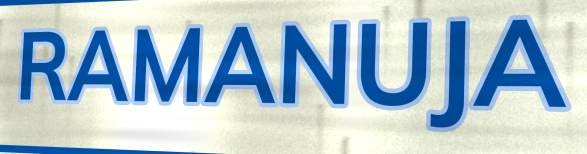
RAMANUJA